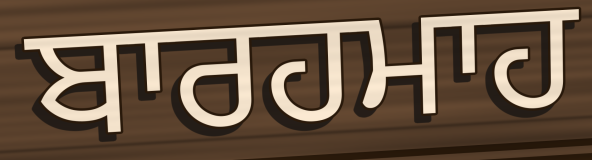
ਬਾਰਹਮਾਹ